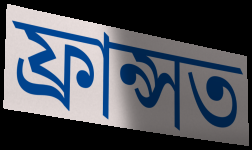
ফ্ৰান্সত